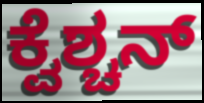
ಕ್ವೆಶ್ಚನ್